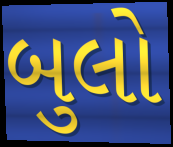
બુલો